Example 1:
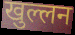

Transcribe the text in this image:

खुल्लन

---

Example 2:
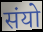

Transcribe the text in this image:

संयो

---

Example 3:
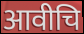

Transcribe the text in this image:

आवीचि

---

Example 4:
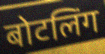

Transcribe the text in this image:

बोटलिंग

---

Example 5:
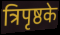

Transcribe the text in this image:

त्रिपृष्ठके